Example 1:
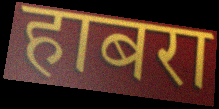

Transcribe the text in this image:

हाबरा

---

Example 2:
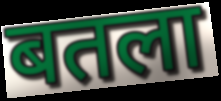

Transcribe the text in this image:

बतला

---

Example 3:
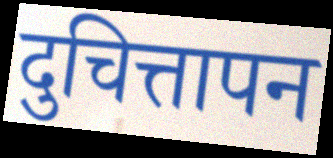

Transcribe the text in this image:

दुचित्तापन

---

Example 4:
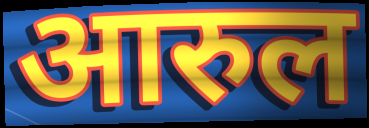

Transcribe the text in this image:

आरुल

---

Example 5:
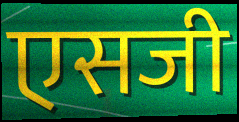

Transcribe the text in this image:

एसजी